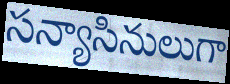
సన్యాసినులుగా